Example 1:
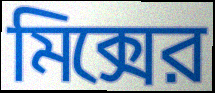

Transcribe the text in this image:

মিক্সের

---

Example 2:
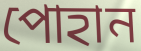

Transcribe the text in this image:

পোহান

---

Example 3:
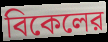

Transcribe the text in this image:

বিকেলের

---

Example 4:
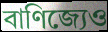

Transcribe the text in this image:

বাণিজ্যেও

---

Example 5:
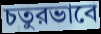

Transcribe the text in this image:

চতুরভাবে